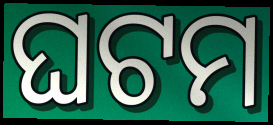
ଘଟମ